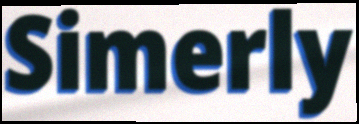
Simerly